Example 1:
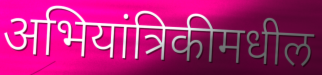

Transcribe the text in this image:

अभियांत्रिकीमधील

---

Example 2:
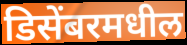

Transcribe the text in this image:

डिसेंबरमधील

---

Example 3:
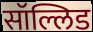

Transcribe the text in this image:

सॉल्लिड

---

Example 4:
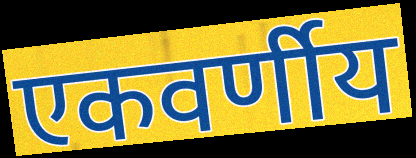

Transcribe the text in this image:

एकवर्णीय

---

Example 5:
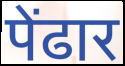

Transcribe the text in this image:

पेंढार